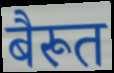
बैरूत